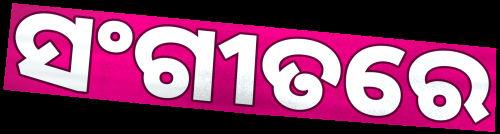
ସଂଗୀତରେ